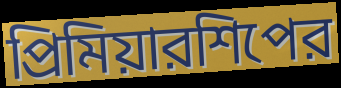
প্রিমিয়ারশিপের